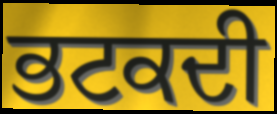
ਭਟਕਦੀ